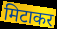
मिटाकर